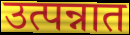
उत्पन्नात